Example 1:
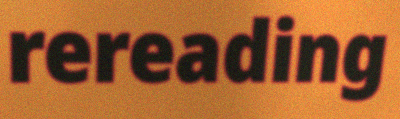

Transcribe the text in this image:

rereading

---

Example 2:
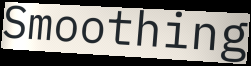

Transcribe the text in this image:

Smoothing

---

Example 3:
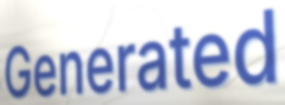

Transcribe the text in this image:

Generated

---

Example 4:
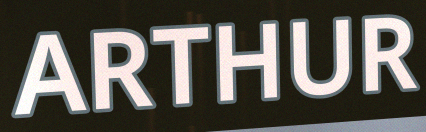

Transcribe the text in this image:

ARTHUR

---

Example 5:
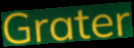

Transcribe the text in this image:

Grater